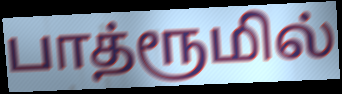
பாத்ரூமில்